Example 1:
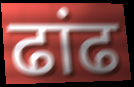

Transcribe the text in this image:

ढांढ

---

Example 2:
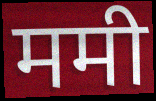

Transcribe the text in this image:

ममी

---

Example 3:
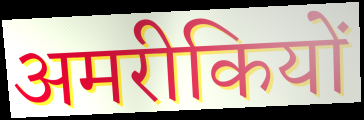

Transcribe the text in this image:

अमरीकियों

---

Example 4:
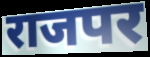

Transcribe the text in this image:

राजपर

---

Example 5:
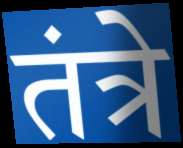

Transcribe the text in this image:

तंत्रे